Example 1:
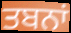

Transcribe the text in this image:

ਤਬਨਾਂ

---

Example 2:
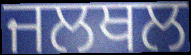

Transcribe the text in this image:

ਜਲਥਲ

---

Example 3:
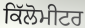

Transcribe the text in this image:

ਕਿੱਲੋਮੀਟਰ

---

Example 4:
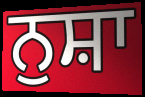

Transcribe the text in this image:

ਨੁਸ਼ਾ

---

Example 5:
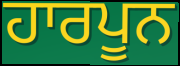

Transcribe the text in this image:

ਹਾਰਪੂਨ